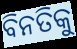
ବିନତିକୁ